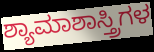
ಶ್ಯಾಮಾಶಾಸ್ತ್ರಿಗಳ